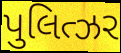
પુલિત્ઝર